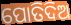
ପୋତିଦିଅ